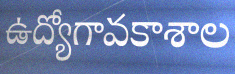
ఉద్యోగావకాశాల